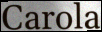
Carola